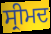
ਸ੍ਰੀਮਦ